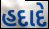
હદાદે